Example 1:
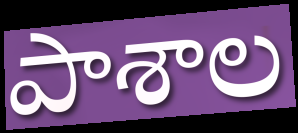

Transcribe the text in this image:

పాశాల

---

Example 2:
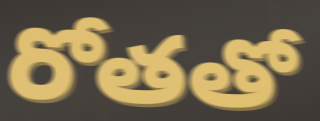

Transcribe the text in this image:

రోతతో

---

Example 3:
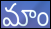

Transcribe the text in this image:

మాం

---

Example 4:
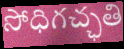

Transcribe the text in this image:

సోధిగచ్ఛతి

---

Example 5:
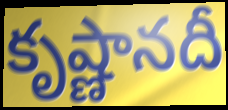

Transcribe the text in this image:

కృష్ణానదీ